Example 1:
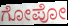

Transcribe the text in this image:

ಗೋಪೋ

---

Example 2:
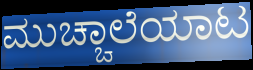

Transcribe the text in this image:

ಮುಚ್ಚಾಲೆಯಾಟ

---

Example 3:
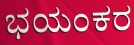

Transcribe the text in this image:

ಭಯಂಕರ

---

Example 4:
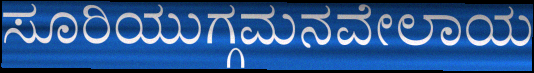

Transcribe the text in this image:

ಸೂರಿಯುಗ್ಗಮನವೇಲಾಯ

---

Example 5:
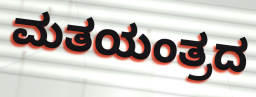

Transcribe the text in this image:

ಮತಯಂತ್ರದ